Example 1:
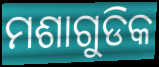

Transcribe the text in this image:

ମଶାଗୁଡିକ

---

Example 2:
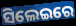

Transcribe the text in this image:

ସିଲେଇରେ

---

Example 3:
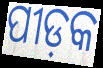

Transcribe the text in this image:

ପୀଡ଼କ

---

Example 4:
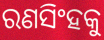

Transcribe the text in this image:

ରଣସିଂହକୁ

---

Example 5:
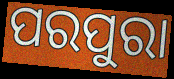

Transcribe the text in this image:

ପରପୁରା